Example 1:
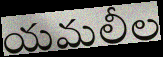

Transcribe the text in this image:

యమలీల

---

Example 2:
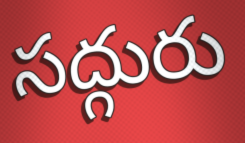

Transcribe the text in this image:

సద్గురు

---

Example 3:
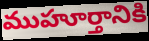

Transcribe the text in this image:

ముహూర్తానికి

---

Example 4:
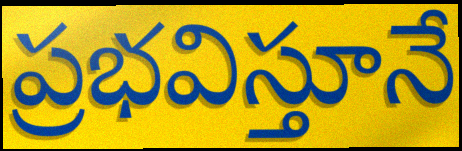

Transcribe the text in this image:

ప్రభవిస్తూనే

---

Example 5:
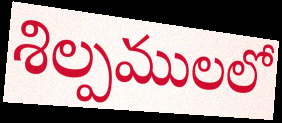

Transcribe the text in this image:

శిల్పములలో